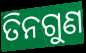
ତିନଗୁଣ